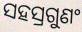
ସହସ୍ରଗୁଣଂ